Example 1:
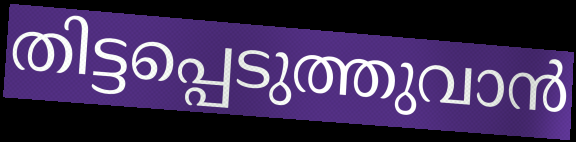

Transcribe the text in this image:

തിട്ടപ്പെടുത്തുവാൻ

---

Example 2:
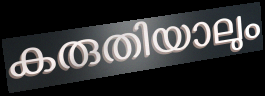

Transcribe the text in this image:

കരുതിയാലും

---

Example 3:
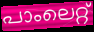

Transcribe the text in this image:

പാംലെറ്റ്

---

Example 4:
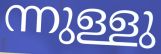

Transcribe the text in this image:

ന്നുള്ളു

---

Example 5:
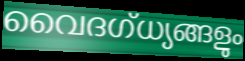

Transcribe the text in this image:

വൈദഗ്ധ്യങ്ങളും